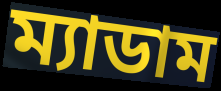
ম্যাডাম